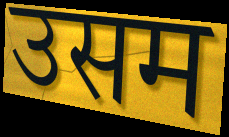
उसम